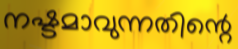
നഷ്ടമാവുന്നതിന്റെ